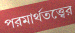
পরমার্থতত্ত্বের